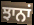
ਝਾਨਾਂ